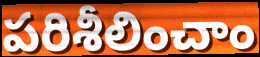
పరిశీలించాం